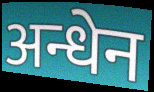
अन्धेन